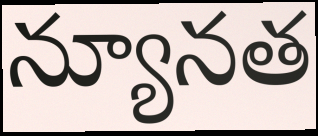
న్యూనత